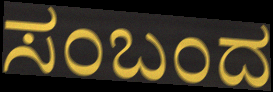
ಸಂಬಂದ